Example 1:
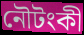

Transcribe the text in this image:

নৌটংকী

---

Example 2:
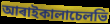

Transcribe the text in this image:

আৰাইকালাচেলভি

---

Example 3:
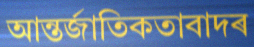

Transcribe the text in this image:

আন্তৰ্জাতিকতাবাদৰ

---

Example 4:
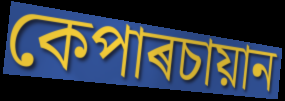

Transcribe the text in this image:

কেপাৰচায়ান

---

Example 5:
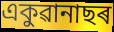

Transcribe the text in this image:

একুৱানাছৰ